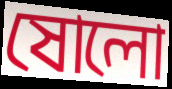
ষোলো